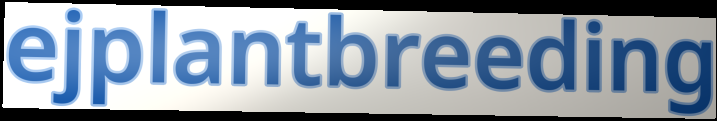
ejplantbreeding